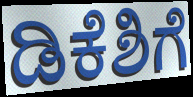
ಡಿಕೆಶಿಗೆ